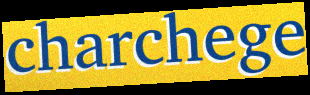
charchege